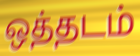
ஒத்தடம்